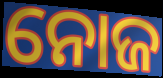
ନୋଜ